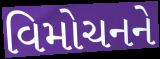
વિમોચનને